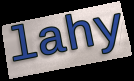
lahy